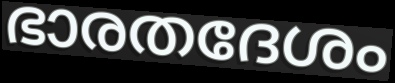
ഭാരതദേശം